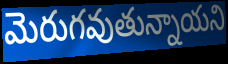
మెరుగవుతున్నాయని